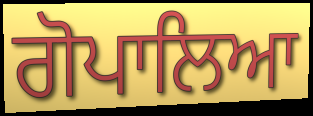
ਗੋਪਾਲਿਆ